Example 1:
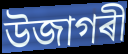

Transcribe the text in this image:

উজাগৰী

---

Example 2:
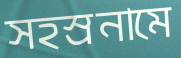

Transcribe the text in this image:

সহস্ৰনামে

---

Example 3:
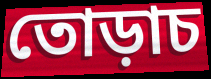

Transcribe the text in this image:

তোড়াচ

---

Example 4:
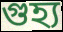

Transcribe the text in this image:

গুহ্য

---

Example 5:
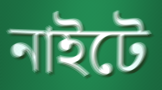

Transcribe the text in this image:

নাইটে